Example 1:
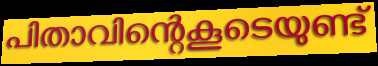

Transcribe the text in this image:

പിതാവിന്റെകൂടെയുണ്ട്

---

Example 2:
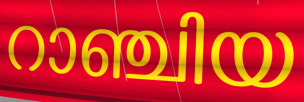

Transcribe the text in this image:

റാഞ്ചിയ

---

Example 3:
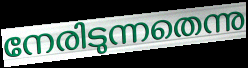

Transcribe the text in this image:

നേരിടുന്നതെന്നു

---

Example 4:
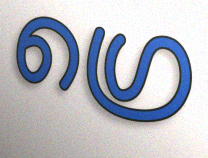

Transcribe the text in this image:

ഗ്രെ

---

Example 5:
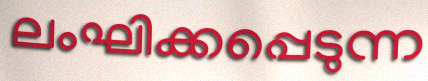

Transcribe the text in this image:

ലംഘിക്കപ്പെടുന്ന